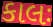
કાલઃ